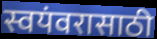
स्वयंवरासाठी